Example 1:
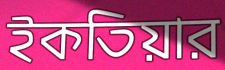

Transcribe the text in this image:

ইকতিয়ার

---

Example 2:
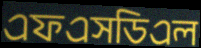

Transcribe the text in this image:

এফএসডিএল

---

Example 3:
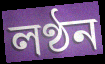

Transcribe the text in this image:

লণ্ঠন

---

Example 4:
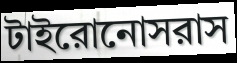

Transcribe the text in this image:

টাইরোনোসরাস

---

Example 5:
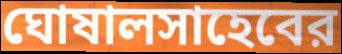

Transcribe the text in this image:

ঘোষালসাহেবের